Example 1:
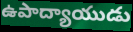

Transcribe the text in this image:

ఉపాద్యాయుడు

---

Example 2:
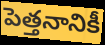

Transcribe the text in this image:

పెత్తనానికీ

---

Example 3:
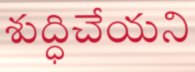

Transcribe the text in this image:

శుద్ధిచేయని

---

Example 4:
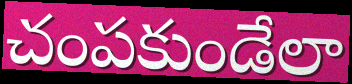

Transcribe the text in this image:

చంపకుండేలా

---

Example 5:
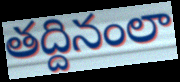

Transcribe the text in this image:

తద్దినంలా